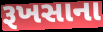
રૂખસાના